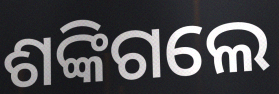
ଶଙ୍କିଗଲେ